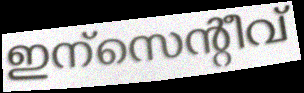
ഇന്സെന്റീവ്